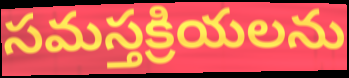
సమస్తక్రియలను